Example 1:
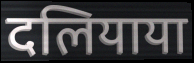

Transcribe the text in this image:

दलियाया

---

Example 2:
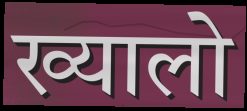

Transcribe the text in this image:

ख्यालो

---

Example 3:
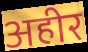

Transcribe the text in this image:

अहीर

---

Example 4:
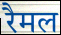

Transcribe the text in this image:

रैमल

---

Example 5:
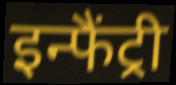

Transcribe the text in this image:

इन्फैंट्री